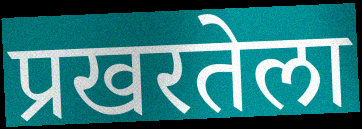
प्रखरतेला